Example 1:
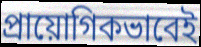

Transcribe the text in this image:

প্রায়োগিকভাবেই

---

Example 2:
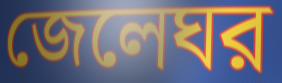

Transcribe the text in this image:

জেলেঘর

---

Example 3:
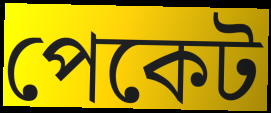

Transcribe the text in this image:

পেকেট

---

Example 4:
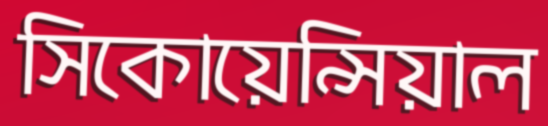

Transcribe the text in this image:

সিকোয়েন্সিয়াল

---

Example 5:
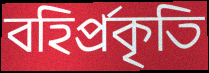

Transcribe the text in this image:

বহির্প্রকৃতি